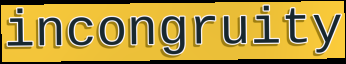
incongruity